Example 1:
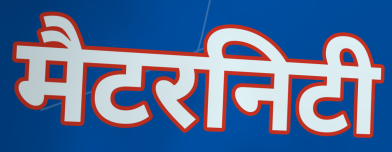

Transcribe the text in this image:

मैटरनिटी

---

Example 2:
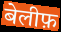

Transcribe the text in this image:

बेलीफ़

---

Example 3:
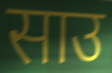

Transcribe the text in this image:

साउ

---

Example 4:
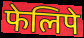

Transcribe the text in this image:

फेलिपे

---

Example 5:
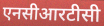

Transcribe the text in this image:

एनसीआरटीसी